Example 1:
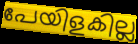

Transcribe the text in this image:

പേയിളകില്ല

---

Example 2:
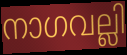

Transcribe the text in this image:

നാഗവല്ലി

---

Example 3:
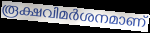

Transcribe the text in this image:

രൂക്ഷവിമർശനമാണ്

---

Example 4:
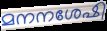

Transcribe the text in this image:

മനനശേഷി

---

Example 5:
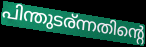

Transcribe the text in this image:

പിന്തുടര്ന്നതിന്റെ